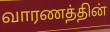
வாரணத்தின்